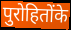
पुरोहितोंके